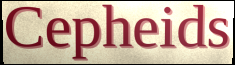
Cepheids